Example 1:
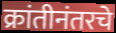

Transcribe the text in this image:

क्रांतीनंतरचे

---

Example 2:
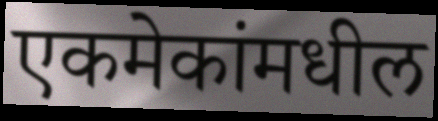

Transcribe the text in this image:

एकमेकांमधील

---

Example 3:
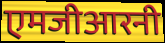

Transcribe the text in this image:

एमजीआरनी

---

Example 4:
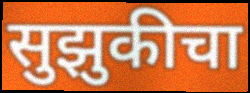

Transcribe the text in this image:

सुझुकीचा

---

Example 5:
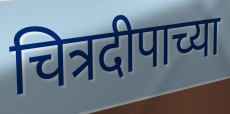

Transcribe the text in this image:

चित्रदीपाच्या